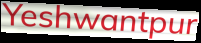
Yeshwantpur